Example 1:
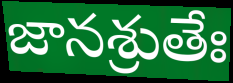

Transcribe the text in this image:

జానశ్రుతేః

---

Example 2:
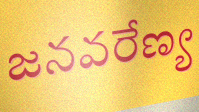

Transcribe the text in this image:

జనవరేణ్య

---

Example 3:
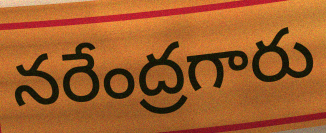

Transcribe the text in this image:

నరేంద్రగారు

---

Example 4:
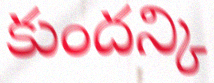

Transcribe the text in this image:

కుందన్కి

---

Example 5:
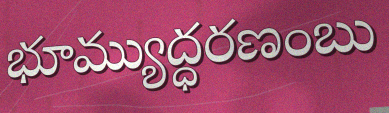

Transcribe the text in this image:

భూమ్యుద్ధరణంబు